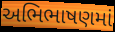
અભિભાષણમાં